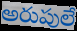
అరుపులే